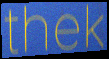
thek